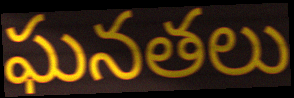
ఘనతలు